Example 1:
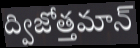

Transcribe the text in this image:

ద్విజోత్తమాన్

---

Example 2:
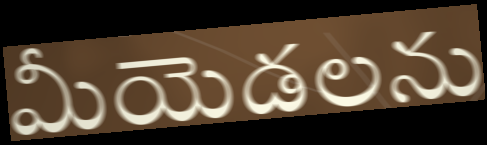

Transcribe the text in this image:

మీయెడలను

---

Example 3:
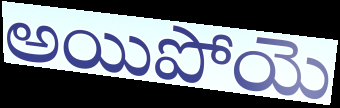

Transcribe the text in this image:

అయిపోయె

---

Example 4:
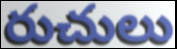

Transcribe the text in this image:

రుచులు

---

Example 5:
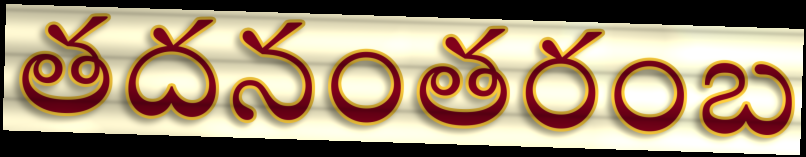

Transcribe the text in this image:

తదనంతరంబ